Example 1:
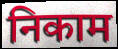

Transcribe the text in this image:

निकाम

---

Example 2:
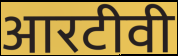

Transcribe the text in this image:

आरटीवी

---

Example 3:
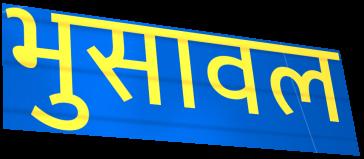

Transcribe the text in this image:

भुसावल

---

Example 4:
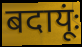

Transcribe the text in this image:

बदायूंः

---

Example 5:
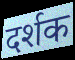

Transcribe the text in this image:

दर्शक